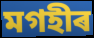
মগহীৰ